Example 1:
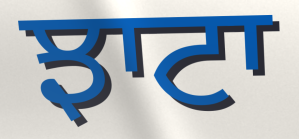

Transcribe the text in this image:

ਝਾਟਾ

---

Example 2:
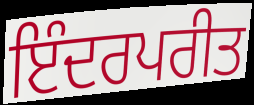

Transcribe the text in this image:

ਇੰਦਰਪਰੀਤ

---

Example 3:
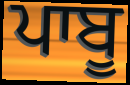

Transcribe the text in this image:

ਪਾਬੂ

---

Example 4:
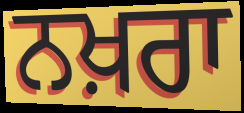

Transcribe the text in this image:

ਨਖ਼ਰਾ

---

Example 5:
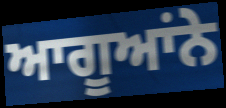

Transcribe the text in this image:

ਆਗੂਆਂਨੇ